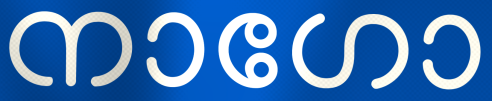
നാഗോ